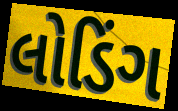
લોડિંગ